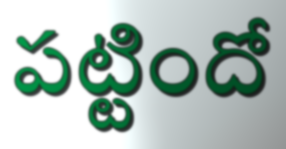
పట్టిందో